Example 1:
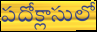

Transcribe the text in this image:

పదోక్లాసులో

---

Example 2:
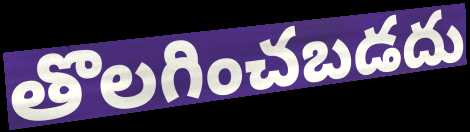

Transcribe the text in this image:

తొలగించబడదు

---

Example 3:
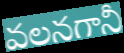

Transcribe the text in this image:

వలనగానీ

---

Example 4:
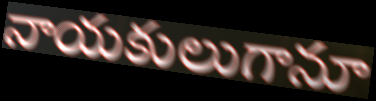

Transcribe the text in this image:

నాయకులుగానూ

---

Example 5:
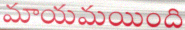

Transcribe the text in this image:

మాయమయింది